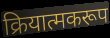
क्रियात्मकरूप